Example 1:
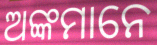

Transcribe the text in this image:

ଅଙ୍କମାନେ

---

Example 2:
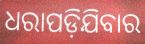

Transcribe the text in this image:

ଧରାପଡ଼ିଯିବାର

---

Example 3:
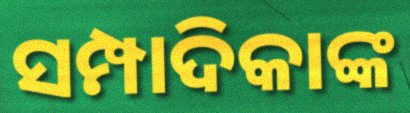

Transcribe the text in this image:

ସମ୍ପାଦିକାଙ୍କ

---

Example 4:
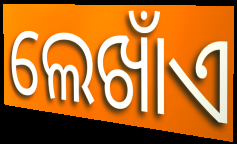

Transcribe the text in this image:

ଲେଖାଁଏ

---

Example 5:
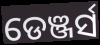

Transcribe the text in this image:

ଡେଞ୍ଜର୍ସ